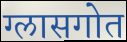
ग्लासगोत